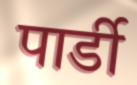
पार्डी